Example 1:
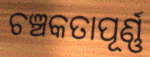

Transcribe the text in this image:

ଚଞ୍ଚକତାପୂର୍ଣ୍ଣ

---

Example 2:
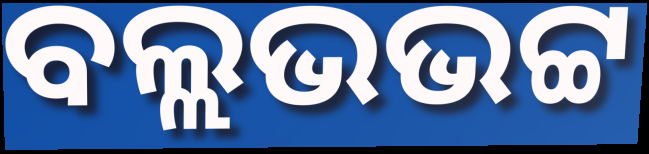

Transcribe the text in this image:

ବଲ୍ଲଭଭଟ୍ଟ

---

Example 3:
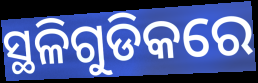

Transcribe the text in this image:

ସ୍ଥଳିଗୁଡିକରେ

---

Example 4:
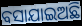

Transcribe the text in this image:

ବସାଯାଇଅଛି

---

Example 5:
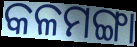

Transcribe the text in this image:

କଳମଙ୍ଗା